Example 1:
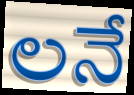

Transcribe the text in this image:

లనే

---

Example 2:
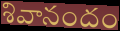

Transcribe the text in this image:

శివానందం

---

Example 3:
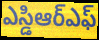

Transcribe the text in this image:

ఎస్డిఆర్ఎఫ్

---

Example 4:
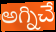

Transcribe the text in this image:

అగ్నిచే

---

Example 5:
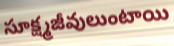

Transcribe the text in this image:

సూక్ష్మజీవులుంటాయి